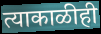
त्याकाळीही